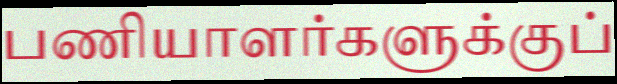
பணியாளர்களுக்குப்